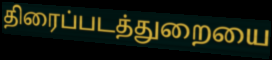
திரைப்படத்துறையை